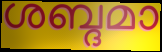
ശബ്ദമാ